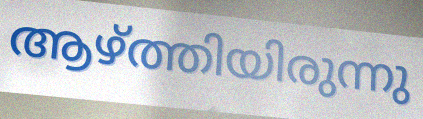
ആഴ്ത്തിയിരുന്നു